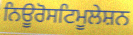
ਨਿਊਰੋਸਟਿਮੂਲੇਸ਼ਨ